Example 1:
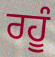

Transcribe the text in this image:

ਰਹੂੰ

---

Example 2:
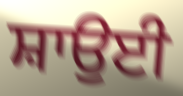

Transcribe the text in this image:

ਸ਼ਾਉਈ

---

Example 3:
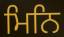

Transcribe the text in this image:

ਮਿਨਿ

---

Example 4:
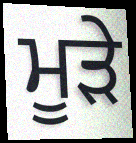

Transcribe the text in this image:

ਮੂੜੇ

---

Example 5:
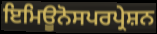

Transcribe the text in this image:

ਇਮਿਊਨੋਸਪਰਪ੍ਰੇਸ਼ਨ